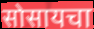
सोसायचा